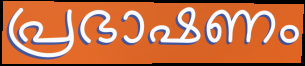
പ്രഭാഷണം